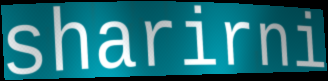
sharirni